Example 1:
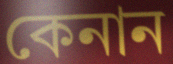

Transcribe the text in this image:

কেনান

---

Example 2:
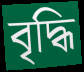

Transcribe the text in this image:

বৃদ্ধি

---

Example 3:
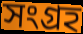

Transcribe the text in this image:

সংগ্রহ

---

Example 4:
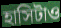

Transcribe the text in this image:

হাসিটাও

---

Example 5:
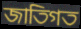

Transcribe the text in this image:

জাতিগত